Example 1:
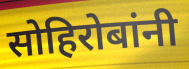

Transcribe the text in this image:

सोहिरोबांनी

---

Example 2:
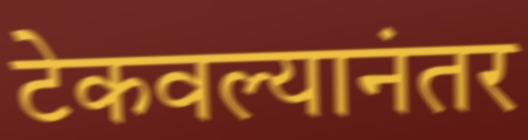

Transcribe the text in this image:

टेकवल्यानंतर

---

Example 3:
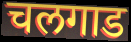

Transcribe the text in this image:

चलगाड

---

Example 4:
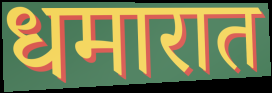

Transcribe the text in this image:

धमारात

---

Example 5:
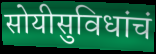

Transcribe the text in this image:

सोयीसुविधांचं